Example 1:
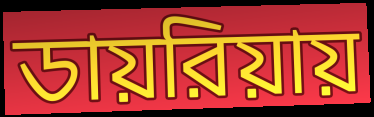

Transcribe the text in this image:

ডায়রিয়ায়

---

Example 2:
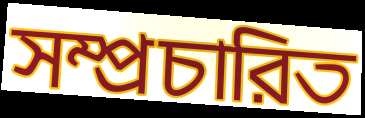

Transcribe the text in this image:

সম্প্রচারিত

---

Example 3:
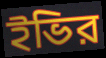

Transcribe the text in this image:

ইভির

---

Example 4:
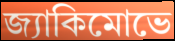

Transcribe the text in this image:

জ্যাকিমোভে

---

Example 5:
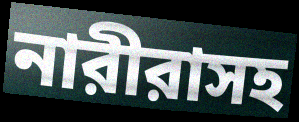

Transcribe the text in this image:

নারীরাসহ